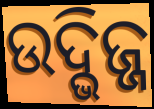
ଉଦ୍ଭିଜ୍ଜ